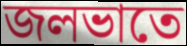
জলভাতে